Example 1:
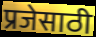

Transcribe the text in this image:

प्रजेसाठी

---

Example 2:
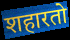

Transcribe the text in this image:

शहारतो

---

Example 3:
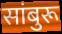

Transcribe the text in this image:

सांबुरू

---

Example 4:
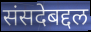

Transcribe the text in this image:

संसदेबद्दल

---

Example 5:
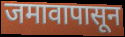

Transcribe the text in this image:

जमावापासून